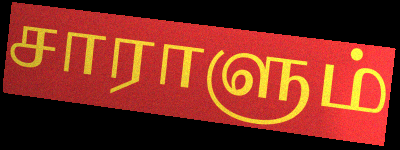
சாராளும்